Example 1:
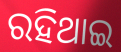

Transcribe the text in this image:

ରହିଥାଇ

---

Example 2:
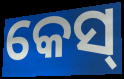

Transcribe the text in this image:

କେସ୍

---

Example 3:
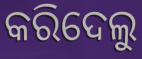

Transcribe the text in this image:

କରିଦେଲୁ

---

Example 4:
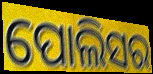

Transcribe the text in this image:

ପୋଲିସର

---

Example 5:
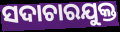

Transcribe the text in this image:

ସଦାଚାରଯୁକ୍ତ